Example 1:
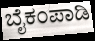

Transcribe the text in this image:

ಬೈಕಂಪಾಡಿ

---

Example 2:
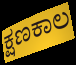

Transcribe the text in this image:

ಕ್ಷಣಕಾಲ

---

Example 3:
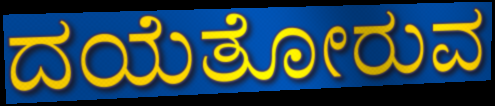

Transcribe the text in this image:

ದಯೆತೋರುವ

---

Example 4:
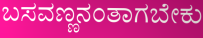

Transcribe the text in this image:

ಬಸವಣ್ಣನಂತಾಗಬೇಕು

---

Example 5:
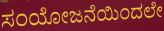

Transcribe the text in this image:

ಸಂಯೋಜನೆಯಿಂದಲೇ